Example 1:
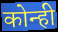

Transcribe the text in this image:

कोन्ही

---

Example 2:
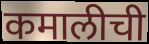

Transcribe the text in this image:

कमालीची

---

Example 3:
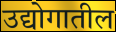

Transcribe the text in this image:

उद्योगातील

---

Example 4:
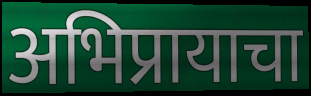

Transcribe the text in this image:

अभिप्रायाचा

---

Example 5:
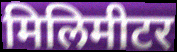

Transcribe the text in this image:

मिलिमीटर